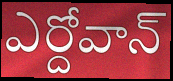
ఎర్దోవాన్